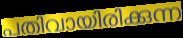
പതിവായിരിക്കുന്ന